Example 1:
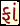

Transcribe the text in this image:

ફાં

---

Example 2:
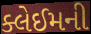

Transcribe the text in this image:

ક્લેઈમની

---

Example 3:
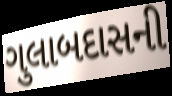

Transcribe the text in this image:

ગુલાબદાસની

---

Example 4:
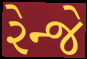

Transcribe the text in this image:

રેન્જે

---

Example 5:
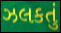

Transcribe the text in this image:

ઝલકતું